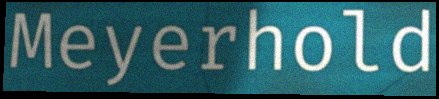
Meyerhold